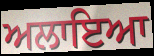
ਅਲਾਇਆ